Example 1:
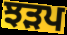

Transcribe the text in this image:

ਝੜਪ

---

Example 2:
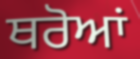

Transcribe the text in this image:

ਥਰੋਆਂ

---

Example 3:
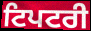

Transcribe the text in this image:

ਟਿਪਟਰੀ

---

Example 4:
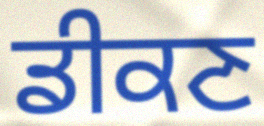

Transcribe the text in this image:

ਡੀਕਣ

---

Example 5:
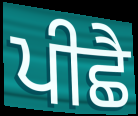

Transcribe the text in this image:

ਪੀਛੈ